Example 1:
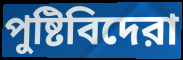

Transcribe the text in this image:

পুষ্টিবিদেরা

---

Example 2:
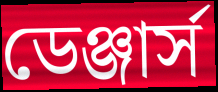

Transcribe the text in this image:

ডেঞ্জার্স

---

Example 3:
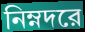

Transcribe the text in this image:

নিম্নদরে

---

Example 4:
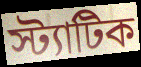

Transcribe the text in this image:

স্ট্যাটিক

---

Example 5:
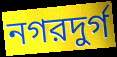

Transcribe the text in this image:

নগরদুর্গ